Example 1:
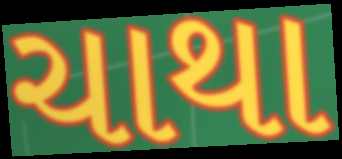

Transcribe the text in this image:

ચાથા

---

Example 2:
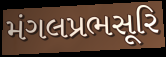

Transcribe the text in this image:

મંગલપ્રભસૂરિ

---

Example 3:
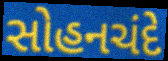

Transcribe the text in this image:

સોહનચંદે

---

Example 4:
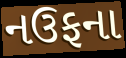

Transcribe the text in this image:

નઉફના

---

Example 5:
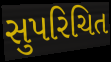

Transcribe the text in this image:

સુપરિચિત